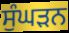
ਸੁੰਘੜਨ